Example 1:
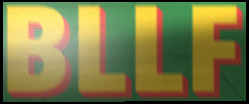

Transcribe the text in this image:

BLLF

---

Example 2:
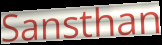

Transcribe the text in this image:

Sansthan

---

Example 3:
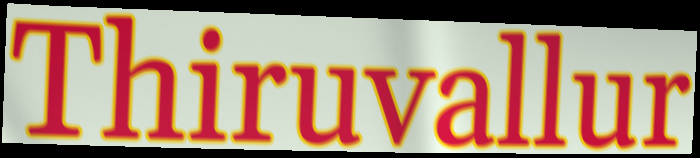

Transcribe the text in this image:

Thiruvallur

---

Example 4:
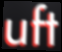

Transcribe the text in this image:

uft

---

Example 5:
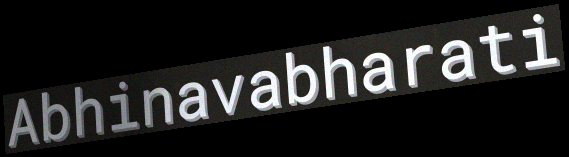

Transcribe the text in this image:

Abhinavabharati